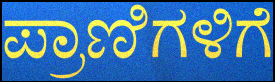
ಪ್ರಾಣಿಗಳಿಗೆ